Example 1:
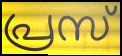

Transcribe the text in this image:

പ്രസ്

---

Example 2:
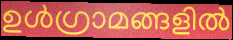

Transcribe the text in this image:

ഉൾഗ്രാമങ്ങളിൽ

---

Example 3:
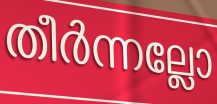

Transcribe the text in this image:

തീർന്നല്ലോ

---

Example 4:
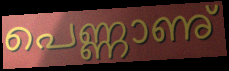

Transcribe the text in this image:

പെണ്ണാണു്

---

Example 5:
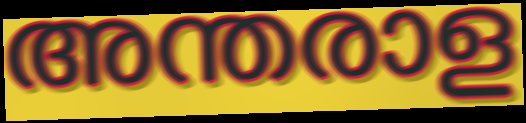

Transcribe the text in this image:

അന്തരാള